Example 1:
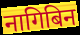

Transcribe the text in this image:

नागिबिन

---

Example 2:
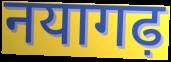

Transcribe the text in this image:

नयागढ़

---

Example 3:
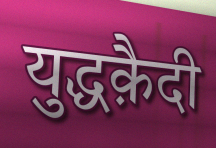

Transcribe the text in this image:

युद्धक़ैदी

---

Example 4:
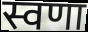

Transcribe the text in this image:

स्वणा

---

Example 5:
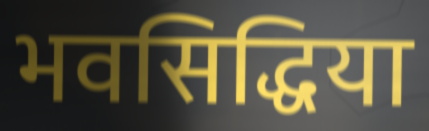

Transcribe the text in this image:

भवसिद्धिया